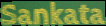
Sankata